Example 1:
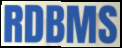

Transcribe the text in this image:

RDBMS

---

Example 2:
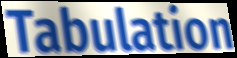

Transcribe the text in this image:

Tabulation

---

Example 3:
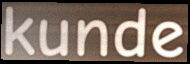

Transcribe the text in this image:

kunde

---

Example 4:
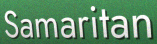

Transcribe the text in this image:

Samaritan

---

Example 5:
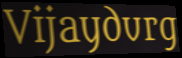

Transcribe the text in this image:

Vijaydurg